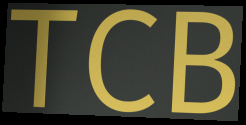
TCB